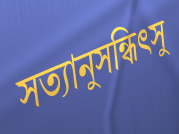
সত্যানুসন্ধিৎসু